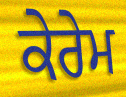
ਕੇਰੇਮ